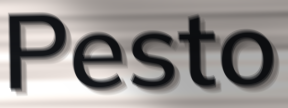
Pesto